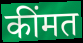
कींमत